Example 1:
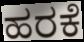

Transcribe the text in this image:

ಹರಕೆ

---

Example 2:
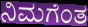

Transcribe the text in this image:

ನಿಮಗೆಂತ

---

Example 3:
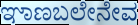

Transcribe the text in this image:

ಞಾಣಬಲೇನೇವ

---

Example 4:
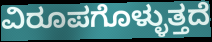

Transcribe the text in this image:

ವಿರೂಪಗೊಳ್ಳುತ್ತದೆ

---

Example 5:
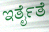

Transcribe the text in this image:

ಇರ್ತೈತೆ